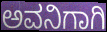
ಅವನಿಗಾಗಿ